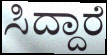
ಸಿದ್ದಾರೆ